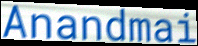
Anandmai